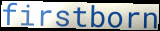
firstborn